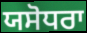
ਯਸੋਧਰਾ